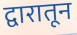
द्वारातून